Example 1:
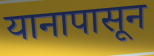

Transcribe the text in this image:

यानापासून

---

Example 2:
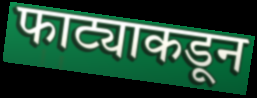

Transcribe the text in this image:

फाट्याकडून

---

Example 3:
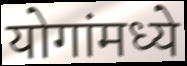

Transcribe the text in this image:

योगांमध्ये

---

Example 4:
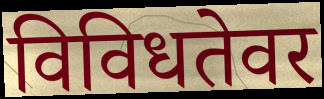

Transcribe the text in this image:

विविधतेवर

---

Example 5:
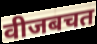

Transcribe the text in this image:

वीजबचत